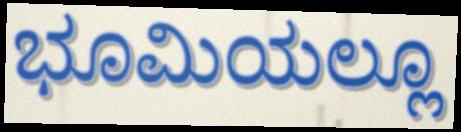
ಭೂಮಿಯಲ್ಲೂ